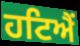
ਹਟਿਐਂ